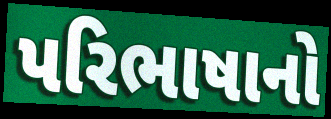
પરિભાષાનો